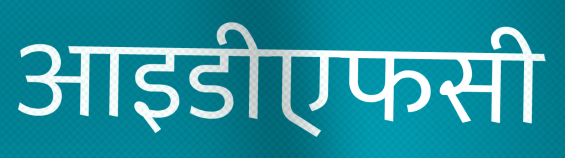
आइडीएफसी